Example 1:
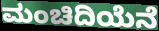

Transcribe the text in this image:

ಮಂಚಿದಿಯೆನೆ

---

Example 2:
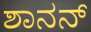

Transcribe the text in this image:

ಶಾನನ್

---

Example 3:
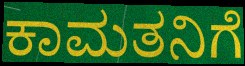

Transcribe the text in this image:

ಕಾಮತನಿಗೆ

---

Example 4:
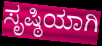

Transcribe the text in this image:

ಸೃಷ್ಠಿಯಾಗಿ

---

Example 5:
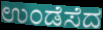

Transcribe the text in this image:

ಉಂಡೆಸೆದ